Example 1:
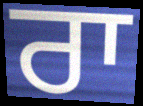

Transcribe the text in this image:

ਰਾ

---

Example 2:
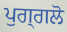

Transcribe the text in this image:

ਪੁਗ੍ਗਲੋ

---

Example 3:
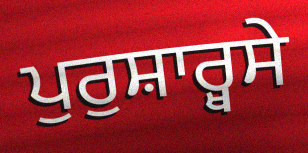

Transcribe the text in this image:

ਪੁਰੁਸ਼ਾਰ੍ਥਸੇ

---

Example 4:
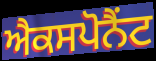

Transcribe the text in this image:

ਐਕਸਪੋਨੈਂਟ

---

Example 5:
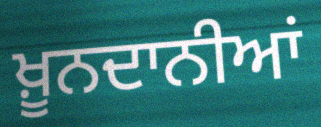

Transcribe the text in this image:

ਖ਼ੂਨਦਾਨੀਆਂ